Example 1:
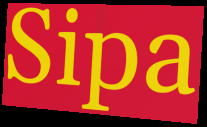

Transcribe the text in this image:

Sipa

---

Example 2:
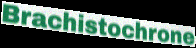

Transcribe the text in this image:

Brachistochrone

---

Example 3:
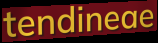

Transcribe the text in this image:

tendineae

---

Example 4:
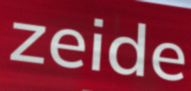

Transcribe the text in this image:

zeide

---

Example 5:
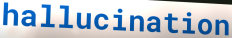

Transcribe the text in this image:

hallucination